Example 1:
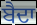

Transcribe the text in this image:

ਬੈਦਾ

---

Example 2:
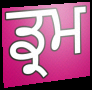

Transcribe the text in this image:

ਡ੍ਰਮ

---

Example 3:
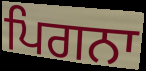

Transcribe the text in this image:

ਪਿਗਨਾ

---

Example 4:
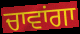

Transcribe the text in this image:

ਚਾਵਾਂਗਾ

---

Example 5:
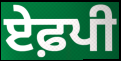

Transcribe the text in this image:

ਏਫ਼ਪੀ